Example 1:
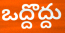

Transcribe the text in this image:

ఒద్దొద్దు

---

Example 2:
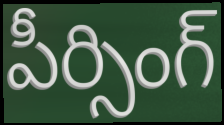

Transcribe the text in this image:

పీర్సింగ్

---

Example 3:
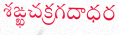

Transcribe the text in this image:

శఙ్ఖచక్రగదాధర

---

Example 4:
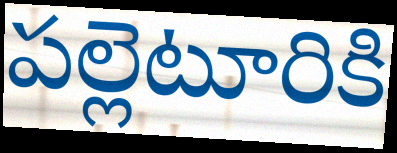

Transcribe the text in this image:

పల్లెటూరికి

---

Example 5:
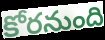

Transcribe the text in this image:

కోరనుంది